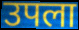
उपला